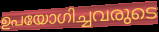
ഉപയോഗിച്ചവരുടെ